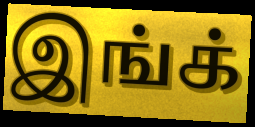
இங்க்